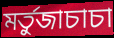
মর্তুজাচাচা